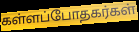
கள்ளப்போதகர்கள்